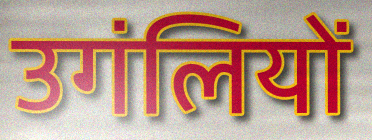
उगंलियों